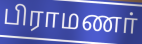
பிராமணர்